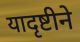
यादृष्टीने